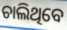
ଚାଲିଥିବେ